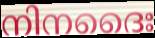
നിനദൈഃ